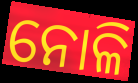
ନୋଳି